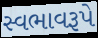
સ્વભાવરૂપે